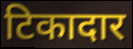
टिकादार